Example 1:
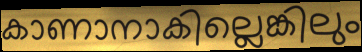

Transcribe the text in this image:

കാണാനാകില്ലെങ്കിലും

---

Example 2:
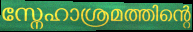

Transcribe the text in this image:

സ്നേഹാശ്രമത്തിന്റെ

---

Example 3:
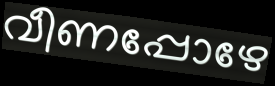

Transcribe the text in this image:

വീണപ്പോഴേ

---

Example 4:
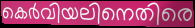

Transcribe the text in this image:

കെർവിയലിനെതിരെ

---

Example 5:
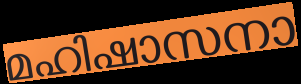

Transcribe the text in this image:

മഹിഷാസനാ